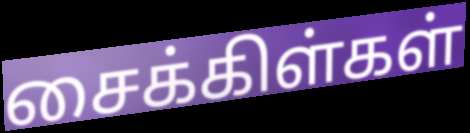
சைக்கிள்கள்